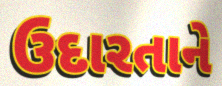
ઉદારતાને